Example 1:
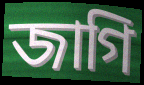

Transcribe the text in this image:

জাগি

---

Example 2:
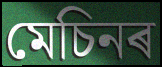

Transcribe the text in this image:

মেচিনৰ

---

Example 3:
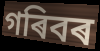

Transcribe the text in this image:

গৰিবৰ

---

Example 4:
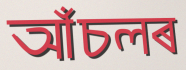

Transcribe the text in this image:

আঁচলৰ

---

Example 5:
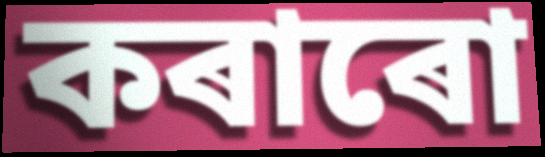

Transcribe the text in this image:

কৰাৰো